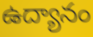
ఉద్యానం